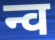
न्व